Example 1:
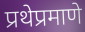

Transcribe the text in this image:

प्रथेप्रमाणे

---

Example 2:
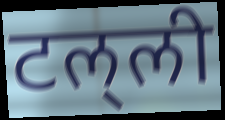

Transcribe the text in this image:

टल्ली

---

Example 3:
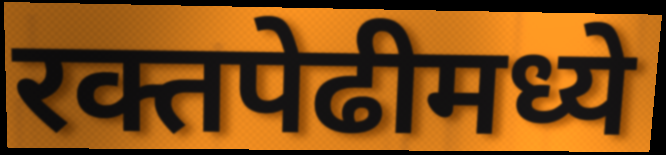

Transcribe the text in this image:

रक्तपेढीमध्ये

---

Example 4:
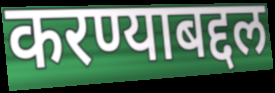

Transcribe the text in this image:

करण्याबद्दल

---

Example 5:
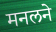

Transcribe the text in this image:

मनलने